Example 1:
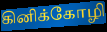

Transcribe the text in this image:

கினிக்கோழி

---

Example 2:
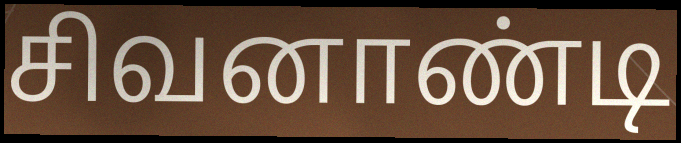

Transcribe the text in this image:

சிவனாண்டி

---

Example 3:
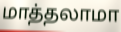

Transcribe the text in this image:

மாத்தலாமா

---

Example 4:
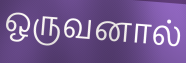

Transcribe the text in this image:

ஒருவனால்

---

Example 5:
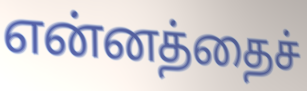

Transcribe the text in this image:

என்னத்தைச்